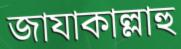
জাযাকাল্লাহু